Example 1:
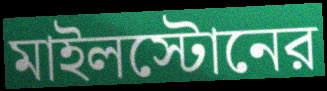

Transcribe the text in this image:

মাইলস্টোনের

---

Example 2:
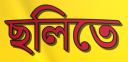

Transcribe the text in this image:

ছলিতে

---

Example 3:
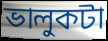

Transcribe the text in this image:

ভালুকটা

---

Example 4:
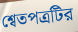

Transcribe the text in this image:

শ্বেতপত্রটির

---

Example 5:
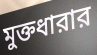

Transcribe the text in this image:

মুক্তধারার